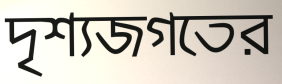
দৃশ্যজগতের